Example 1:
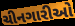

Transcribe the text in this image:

ચીનગારીઓ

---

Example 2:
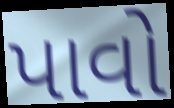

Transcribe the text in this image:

પાવો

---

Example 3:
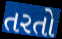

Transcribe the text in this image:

તરતો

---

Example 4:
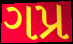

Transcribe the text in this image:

ગપ્ર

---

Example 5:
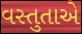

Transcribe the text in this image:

વસ્તુતાએ